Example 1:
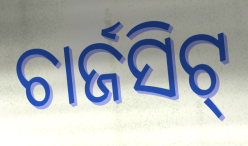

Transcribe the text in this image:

ଚାର୍ଜସିଟ୍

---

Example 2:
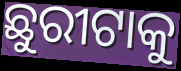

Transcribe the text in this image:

ଛୁରୀଟାକୁ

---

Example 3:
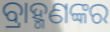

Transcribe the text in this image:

ବ୍ରାହ୍ମଣଙ୍କର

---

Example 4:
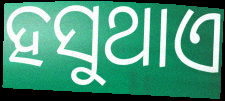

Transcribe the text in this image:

ହସୁଥାଏ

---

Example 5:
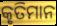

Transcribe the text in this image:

କୃତିମାନ